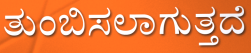
ತುಂಬಿಸಲಾಗುತ್ತದೆ